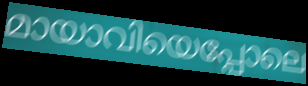
മായാവിയെപ്പോലെ